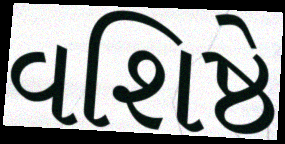
વશિષ્ઠે